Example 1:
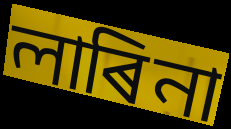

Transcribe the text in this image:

লাৰিনা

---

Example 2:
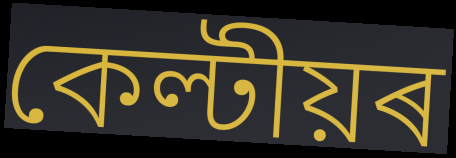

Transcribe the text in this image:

কেল্টীয়ৰ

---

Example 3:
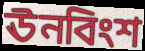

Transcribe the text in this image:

ঊনবিংশ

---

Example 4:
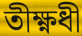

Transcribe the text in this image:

তীক্ষ্ণধী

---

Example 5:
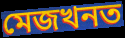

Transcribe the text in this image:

মেজখনত